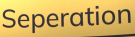
Seperation